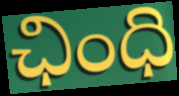
ఛింధి